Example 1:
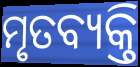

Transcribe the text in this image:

ମୃତବ୍ୟକ୍ତି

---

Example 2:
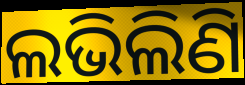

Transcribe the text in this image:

ଲଭିଲିଣି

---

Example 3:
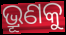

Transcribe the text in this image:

ଭ୍ରୂଣକୁ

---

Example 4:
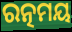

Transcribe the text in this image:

ରତ୍ନମୟ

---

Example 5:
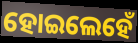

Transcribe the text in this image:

ହୋଇଲେହେଁ